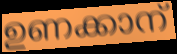
ഉണക്കാന്